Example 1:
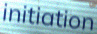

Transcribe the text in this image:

initiation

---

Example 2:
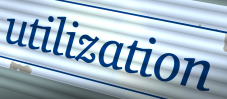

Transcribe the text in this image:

utilization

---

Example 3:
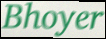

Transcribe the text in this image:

Bhoyer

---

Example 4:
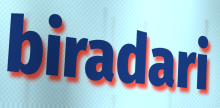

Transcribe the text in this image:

biradari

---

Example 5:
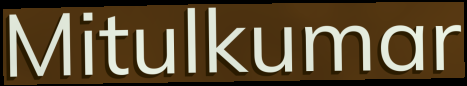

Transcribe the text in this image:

Mitulkumar